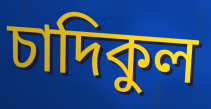
চাদিকুল